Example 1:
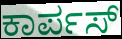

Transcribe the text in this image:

ಕಾರ್ಪಸ್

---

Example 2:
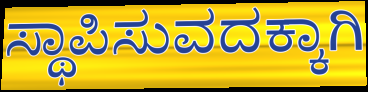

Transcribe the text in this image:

ಸ್ಥಾಪಿಸುವದಕ್ಕಾಗಿ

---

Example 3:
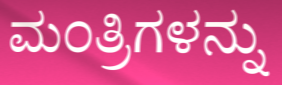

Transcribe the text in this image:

ಮಂತ್ರಿಗಳನ್ನು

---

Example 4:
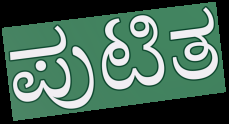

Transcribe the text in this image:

ಪುಟಿತ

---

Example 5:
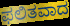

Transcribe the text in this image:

ಫಲಿತವಾದ